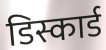
डिस्कार्ड